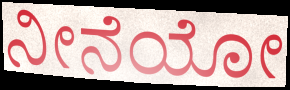
ನೀನೆಯೋ